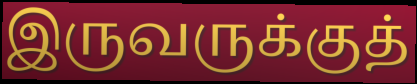
இருவருக்குத்